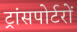
ट्रांसपोर्टरों